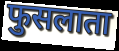
फुसलाता